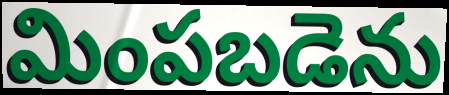
మింపబడెను